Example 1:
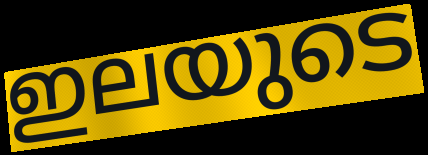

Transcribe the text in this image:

ഇലയുടെ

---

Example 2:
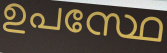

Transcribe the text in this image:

ഉപസ്ഥേ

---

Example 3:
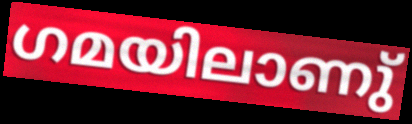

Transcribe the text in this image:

ഗമയിലാണു്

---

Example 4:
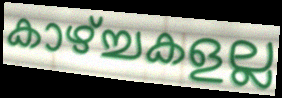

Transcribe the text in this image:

കാഴ്ച്ചകളല്ല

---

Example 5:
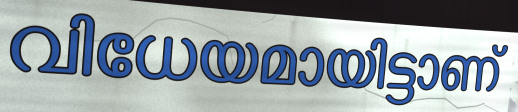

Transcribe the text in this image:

വിധേയമായിട്ടാണ്